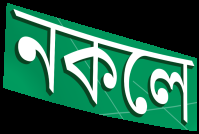
নকলে